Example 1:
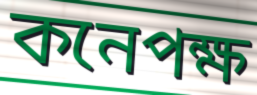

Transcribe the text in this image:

কনেপক্ষ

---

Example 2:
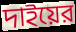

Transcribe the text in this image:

দাইয়ের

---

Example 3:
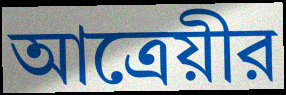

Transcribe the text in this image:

আত্রেয়ীর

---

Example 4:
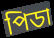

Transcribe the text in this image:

পিডা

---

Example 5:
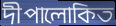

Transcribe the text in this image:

দীপালোকিত